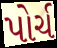
પોર્ચ